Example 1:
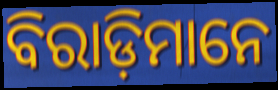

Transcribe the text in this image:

ବିରାଡ଼ିମାନେ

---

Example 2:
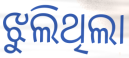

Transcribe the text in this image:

ଝୁଲିଥିଲା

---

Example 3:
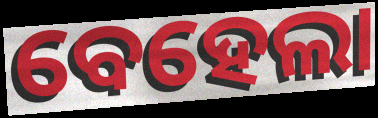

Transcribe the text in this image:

ବେହେଲା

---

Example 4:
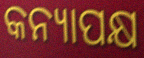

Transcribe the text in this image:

କନ୍ଯାପକ୍ଷ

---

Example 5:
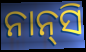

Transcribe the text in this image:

ନାନ୍‌ସି